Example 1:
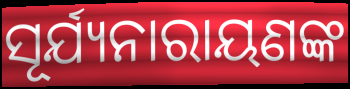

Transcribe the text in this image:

ସୂର୍ଯ୍ୟନାରାୟଣଙ୍କ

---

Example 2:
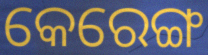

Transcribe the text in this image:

କେରେଙ୍ଗ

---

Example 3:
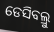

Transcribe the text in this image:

ଡେସିବଲ୍ରୁ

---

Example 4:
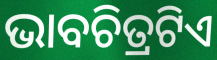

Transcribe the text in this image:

ଭାବଚିତ୍ରଟିଏ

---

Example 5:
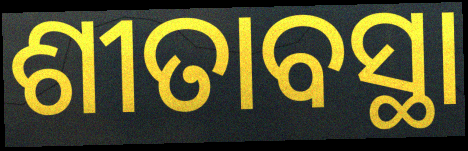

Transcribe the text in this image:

ଶୀତାବସ୍ଥା